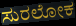
ಸುರಲೋಕ